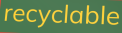
recyclable